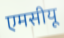
एमसीयू